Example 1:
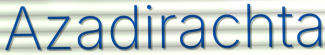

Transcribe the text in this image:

Azadirachta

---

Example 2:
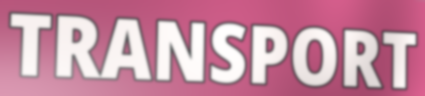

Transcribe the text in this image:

TRANSPORT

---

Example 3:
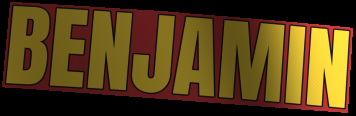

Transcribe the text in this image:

BENJAMIN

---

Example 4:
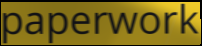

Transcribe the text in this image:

paperwork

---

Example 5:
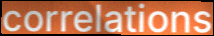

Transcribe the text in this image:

correlations